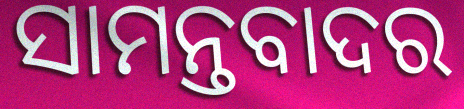
ସାମନ୍ତବାଦର